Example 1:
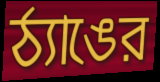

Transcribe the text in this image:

ঠ্যাঙের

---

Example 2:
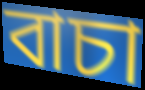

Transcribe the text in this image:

বাচা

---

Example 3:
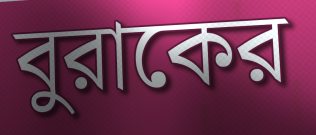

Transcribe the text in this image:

বুরাকের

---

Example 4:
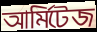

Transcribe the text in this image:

আর্মিটেজ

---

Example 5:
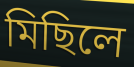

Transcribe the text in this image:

মিছিলে